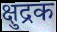
क्षुद्रक